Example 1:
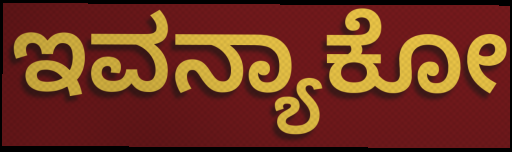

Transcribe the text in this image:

ಇವನ್ಯಾಕೋ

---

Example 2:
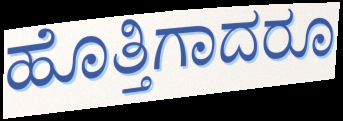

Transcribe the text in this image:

ಹೊತ್ತಿಗಾದರೂ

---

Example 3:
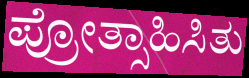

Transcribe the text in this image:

ಪ್ರೋತ್ಸಾಹಿಸಿತು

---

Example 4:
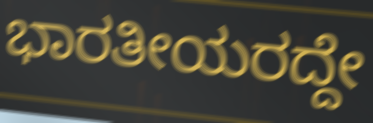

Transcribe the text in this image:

ಭಾರತೀಯರದ್ದೇ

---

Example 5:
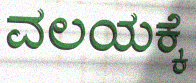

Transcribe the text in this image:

ವಲಯಕ್ಕೆ